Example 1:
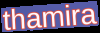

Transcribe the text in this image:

thamira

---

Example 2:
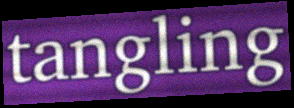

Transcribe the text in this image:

tangling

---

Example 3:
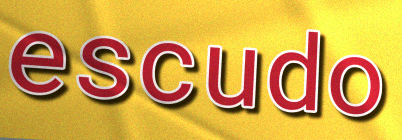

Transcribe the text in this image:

escudo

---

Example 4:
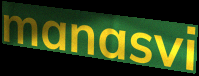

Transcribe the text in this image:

manasvi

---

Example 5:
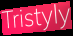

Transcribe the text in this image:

Tristyly